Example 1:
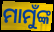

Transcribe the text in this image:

ମାମୁଁଙ୍କ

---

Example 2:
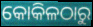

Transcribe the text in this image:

କୋକିଳଠାରୁ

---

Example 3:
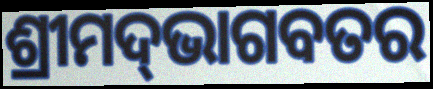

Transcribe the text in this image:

ଶ୍ରୀମଦ୍‌ଭାଗବତର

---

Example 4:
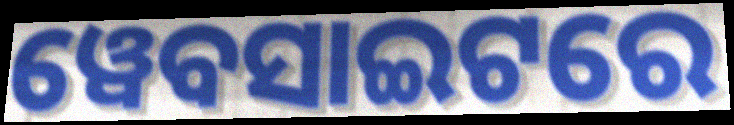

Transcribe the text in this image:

ୱେବସାଇଟରେ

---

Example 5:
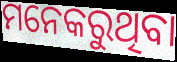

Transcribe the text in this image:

ମନେକରୁଥିବା